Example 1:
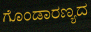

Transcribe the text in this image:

ಗೊಂಡಾರಣ್ಯದ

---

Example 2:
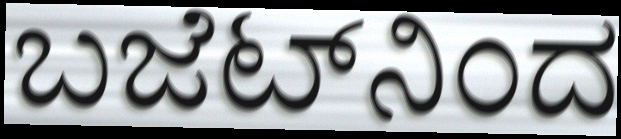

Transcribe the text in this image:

ಬಜೆಟ್‌ನಿಂದ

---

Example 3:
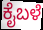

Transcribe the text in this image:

ಕೈಬಳೆ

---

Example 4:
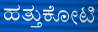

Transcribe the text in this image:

ಹತ್ತುಕೋಟಿ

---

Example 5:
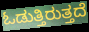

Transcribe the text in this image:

ಓಡುತ್ತಿರುತ್ತದೆ